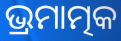
ଭ୍ରମାତ୍ମକ